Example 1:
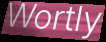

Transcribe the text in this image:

Wortly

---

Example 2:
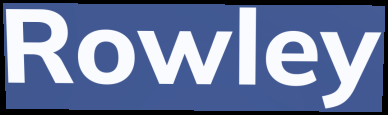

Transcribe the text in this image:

Rowley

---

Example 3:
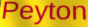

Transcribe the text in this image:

Peyton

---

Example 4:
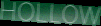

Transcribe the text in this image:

HOLLOW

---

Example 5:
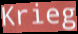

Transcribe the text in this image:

Krieg